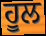
ਹੂਲ